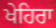
ਖੇਹਿਰਾ